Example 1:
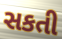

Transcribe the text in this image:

સકતી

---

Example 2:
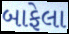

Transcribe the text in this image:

બાફેલા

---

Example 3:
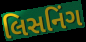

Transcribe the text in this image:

લિસનિંગ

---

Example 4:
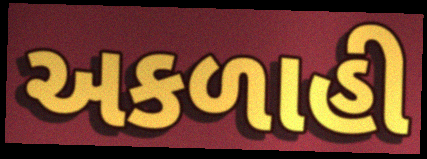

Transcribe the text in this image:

અકળાહી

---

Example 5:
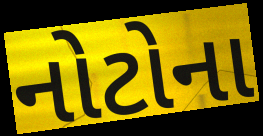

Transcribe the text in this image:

નોટોના